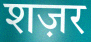
शज़र